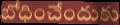
బోధించేందుకు